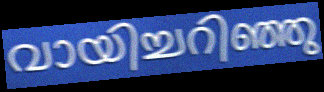
വായിച്ചറിഞ്ഞു